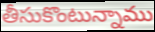
తీసుకొంటున్నాము